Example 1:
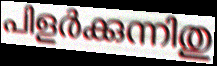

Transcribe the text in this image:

പിളർക്കുന്നിതു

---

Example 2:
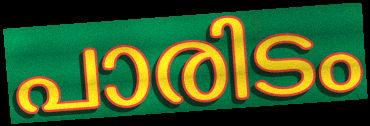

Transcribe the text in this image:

പാരിടം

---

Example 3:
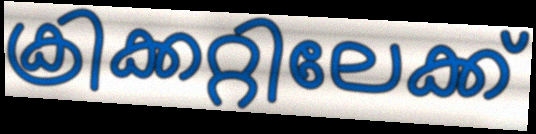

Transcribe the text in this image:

ക്രിക്കറ്റിലേക്ക്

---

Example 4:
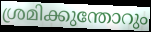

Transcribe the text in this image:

ശ്രമിക്കുന്തോറും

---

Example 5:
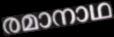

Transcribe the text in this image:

രമാനാഥ